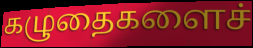
கழுதைகளைச்